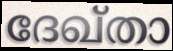
ദേഖ്താ